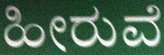
ಹೀರುವೆ